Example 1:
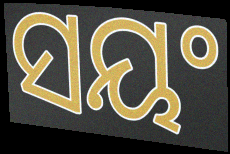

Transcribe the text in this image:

ସୟଂ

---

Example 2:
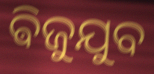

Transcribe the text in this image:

ଵିଜୁଯୁବ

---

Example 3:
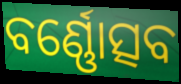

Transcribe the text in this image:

ବର୍ଣ୍ଣୋତ୍ସବ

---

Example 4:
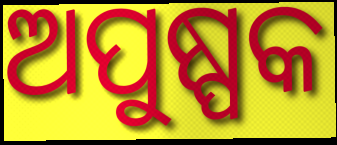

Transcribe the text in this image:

ଅପୁଷ୍ପକ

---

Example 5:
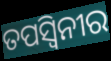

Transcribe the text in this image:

ତପସ୍ୱିନୀର